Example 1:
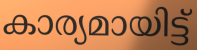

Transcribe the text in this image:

കാര്യമായിട്ട്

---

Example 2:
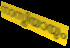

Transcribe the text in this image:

നാസ്തിയായും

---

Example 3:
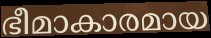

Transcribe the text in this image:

ഭീമാകാരമായ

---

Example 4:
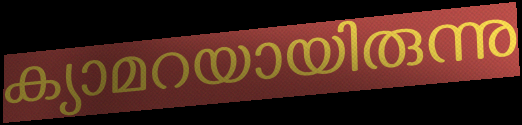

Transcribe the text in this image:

ക്യാമറയായിരുന്നു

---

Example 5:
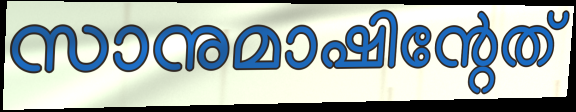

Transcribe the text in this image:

സാനുമാഷിന്റേത്